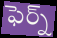
ఫెర్న్